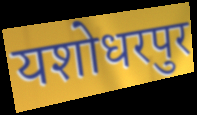
यशोधरपुर